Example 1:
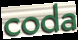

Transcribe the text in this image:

coda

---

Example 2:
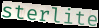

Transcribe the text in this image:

sterlite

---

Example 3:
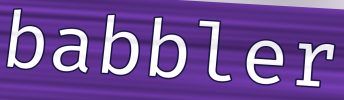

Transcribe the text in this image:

babbler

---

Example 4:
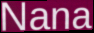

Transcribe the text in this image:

Nana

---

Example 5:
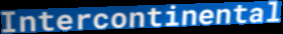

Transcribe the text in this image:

Intercontinental